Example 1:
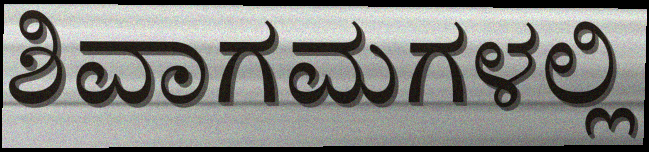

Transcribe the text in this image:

ಶಿವಾಗಮಗಳಲ್ಲಿ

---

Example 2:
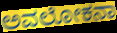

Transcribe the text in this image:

ಅವಲೋಕನಾ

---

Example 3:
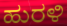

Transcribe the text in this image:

ಹುರಳಿ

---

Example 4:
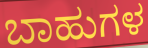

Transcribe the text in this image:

ಬಾಹುಗಳ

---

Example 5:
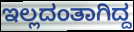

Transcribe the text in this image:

ಇಲ್ಲದಂತಾಗಿದ್ದ